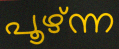
പൂഴ്ന്ന